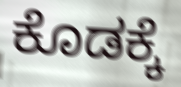
ಕೊಡಕ್ಕೆ